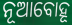
ନୂଆବୋହୂ